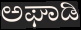
ಅಘಾಡಿ